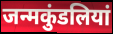
जन्मकुंडलियां